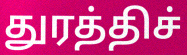
துரத்திச்